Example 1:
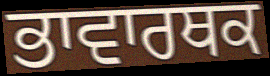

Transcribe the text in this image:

ਭਾਵਾਰਥਕ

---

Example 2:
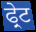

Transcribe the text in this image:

ਫ੍ਰੇਟ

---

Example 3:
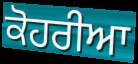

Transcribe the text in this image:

ਕੋਹਰੀਆ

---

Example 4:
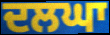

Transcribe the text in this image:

ਦਲਘਾ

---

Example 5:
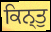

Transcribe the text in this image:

ਕਿਨ੍ਤੁ